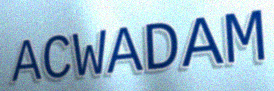
ACWADAM